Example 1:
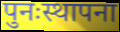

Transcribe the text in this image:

पुनःस्थापना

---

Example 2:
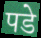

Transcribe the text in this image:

पडे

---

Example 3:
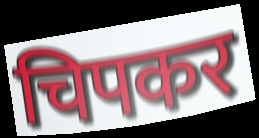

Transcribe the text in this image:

चिपकर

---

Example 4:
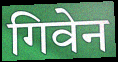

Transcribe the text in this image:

गिवेन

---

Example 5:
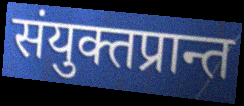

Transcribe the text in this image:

संयुक्तप्रान्त